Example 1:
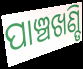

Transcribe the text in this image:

ପାଞ୍ଚଖଣ୍ଡି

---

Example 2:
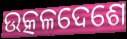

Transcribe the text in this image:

ଉତ୍କଳଦେଶେ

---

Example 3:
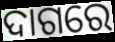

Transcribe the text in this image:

ଦାଗରେ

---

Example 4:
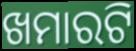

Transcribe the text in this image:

ଖମାରଟି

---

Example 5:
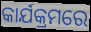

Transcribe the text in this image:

କାର୍ଯକ୍ରମରେ